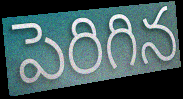
పెరిగిన